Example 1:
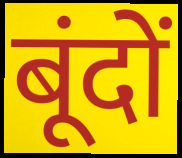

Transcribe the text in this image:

बूंदों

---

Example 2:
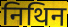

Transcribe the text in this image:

निथिन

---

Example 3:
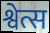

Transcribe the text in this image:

श्वेत्स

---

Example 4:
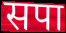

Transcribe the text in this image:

सपा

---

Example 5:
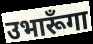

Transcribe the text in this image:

उभारूँगा